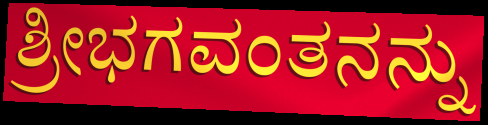
ಶ್ರೀಭಗವಂತನನ್ನು